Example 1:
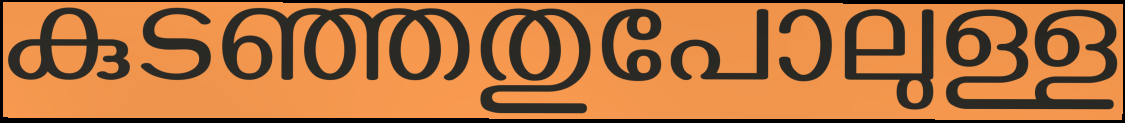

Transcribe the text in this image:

കുടഞ്ഞതുപോലുള്ള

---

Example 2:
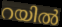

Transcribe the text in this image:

റയിൽ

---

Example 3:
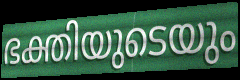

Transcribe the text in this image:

ഭക്തിയുടെയും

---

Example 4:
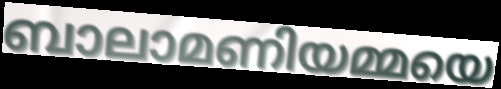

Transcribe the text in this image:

ബാലാമണിയമ്മയെ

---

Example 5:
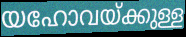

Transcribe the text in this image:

യഹോവയ്ക്കുള്ള